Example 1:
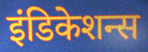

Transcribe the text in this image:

इंडिकेशन्स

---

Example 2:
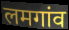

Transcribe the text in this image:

लमगांव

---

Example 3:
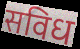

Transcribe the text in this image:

सविध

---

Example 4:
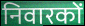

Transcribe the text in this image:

निवारकों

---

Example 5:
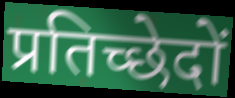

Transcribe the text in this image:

प्रतिच्छेदों